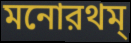
মনোরথম্